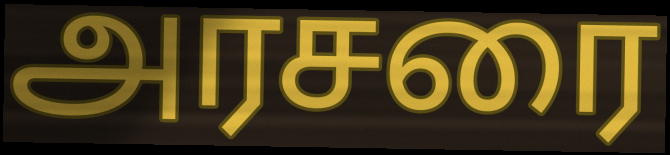
அரசரை